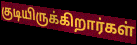
குடியிருக்கிறார்கள்